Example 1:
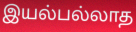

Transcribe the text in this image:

இயல்பல்லாத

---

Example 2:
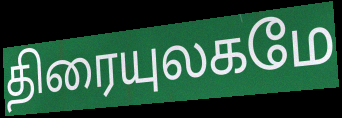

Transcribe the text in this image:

திரையுலகமே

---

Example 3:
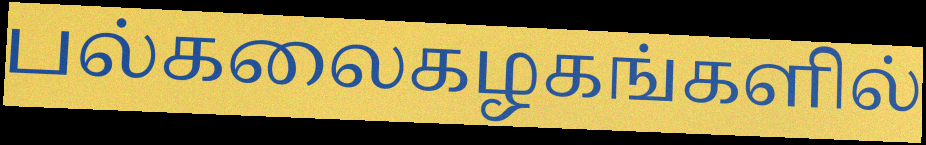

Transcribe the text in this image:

பல்கலைகழகங்களில்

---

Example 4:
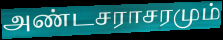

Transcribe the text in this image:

அண்டசராசரமும்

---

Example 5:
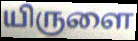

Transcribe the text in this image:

யிருளை